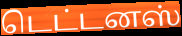
டெட்டனஸ்